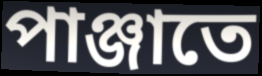
পাঞ্জাতে